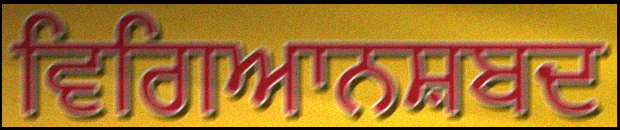
ਵਿਗਿਆਨਸ਼ਬਦ